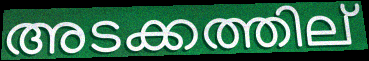
അടക്കത്തില്